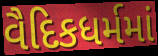
વૈદિકધર્મમાં